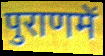
पुराणमें